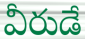
వీరుడే